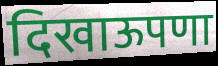
दिखाऊपणा